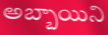
అబ్బాయిని